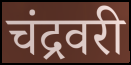
चंद्रवरी